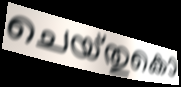
ചെയ്‌തുകൊ